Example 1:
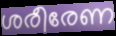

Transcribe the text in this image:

ശരീരേണ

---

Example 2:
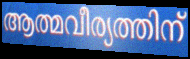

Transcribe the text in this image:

ആത്മവീര്യത്തിന്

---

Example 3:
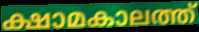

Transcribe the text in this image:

ക്ഷാമകാലത്ത്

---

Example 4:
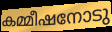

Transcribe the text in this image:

കമ്മീഷനോടു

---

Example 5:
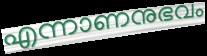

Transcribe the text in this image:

എന്നാണനുഭവം